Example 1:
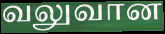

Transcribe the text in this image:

வலுவான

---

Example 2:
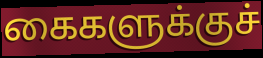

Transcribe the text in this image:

கைகளுக்குச்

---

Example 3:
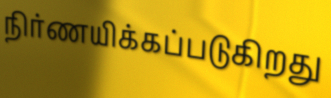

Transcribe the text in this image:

நிர்ணயிக்கப்படுகிறது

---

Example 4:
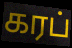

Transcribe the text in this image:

கரப்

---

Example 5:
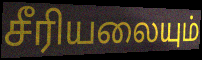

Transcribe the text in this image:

சீரியலையும்